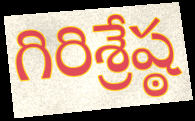
గిరిశ్రేష్ఠ